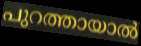
പുറത്തായാൽ